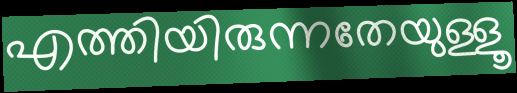
എത്തിയിരുന്നതേയുള്ളൂ